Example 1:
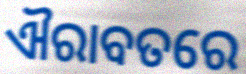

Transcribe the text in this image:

ଐରାବତରେ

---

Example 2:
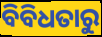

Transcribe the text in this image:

ବିବିଧତାରୁ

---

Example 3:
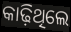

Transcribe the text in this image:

କାଢ଼ିଥିଲେ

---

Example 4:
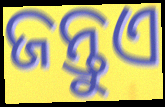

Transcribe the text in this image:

ଜନ୍ତୁଏ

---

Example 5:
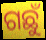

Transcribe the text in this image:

ଗଛୁଁ